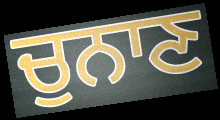
ਚੁਨਾਣ